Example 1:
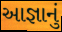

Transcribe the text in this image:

આજ્ઞાનું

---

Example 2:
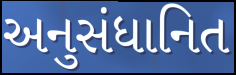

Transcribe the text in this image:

અનુસંધાનિત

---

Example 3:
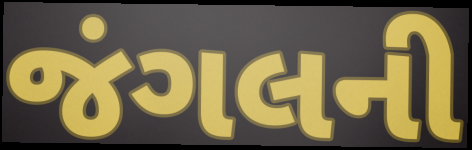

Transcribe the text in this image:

જંગલની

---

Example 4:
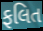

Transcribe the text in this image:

ફલિત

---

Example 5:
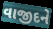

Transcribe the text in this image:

વાજીદને